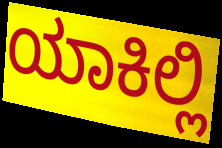
ಯಾಕಿಲ್ಲಿ